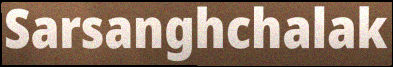
Sarsanghchalak